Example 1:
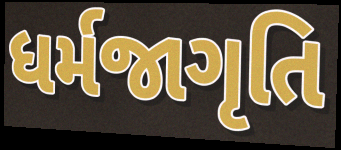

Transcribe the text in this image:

ધર્મજાગૃતિ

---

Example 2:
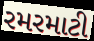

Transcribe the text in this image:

રમરમાટી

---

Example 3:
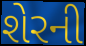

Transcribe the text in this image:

શેરની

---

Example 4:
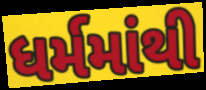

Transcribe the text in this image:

ધર્મમાંથી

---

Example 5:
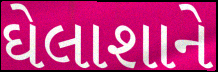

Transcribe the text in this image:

ઘેલાશાને